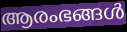
ആരംഭങ്ങൾ